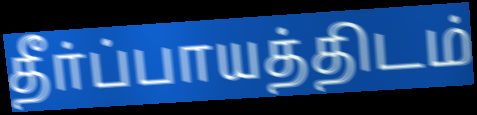
தீர்ப்பாயத்திடம்